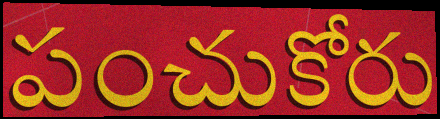
పంచుకోరు